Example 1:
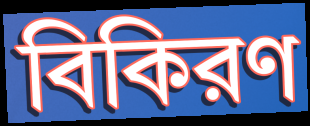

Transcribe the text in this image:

বিকিরণ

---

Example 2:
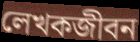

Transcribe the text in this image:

লেখকজীবন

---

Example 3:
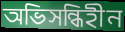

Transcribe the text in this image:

অভিসন্ধিহীন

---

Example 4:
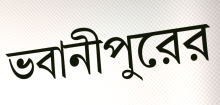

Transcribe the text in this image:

ভবানীপুরের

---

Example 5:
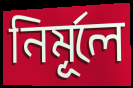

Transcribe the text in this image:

নির্মূলে